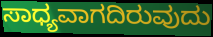
ಸಾಧ್ಯವಾಗದಿರುವುದು